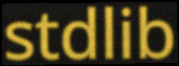
stdlib